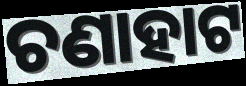
ଚଣାହାଟ